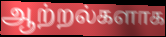
ஆற்றல்களாக